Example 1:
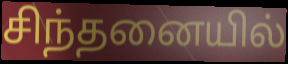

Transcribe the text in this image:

சிந்தனையில்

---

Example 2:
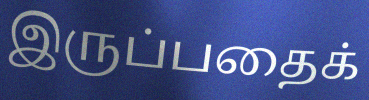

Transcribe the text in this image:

இருப்பதைக்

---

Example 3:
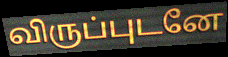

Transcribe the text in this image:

விருப்புடனே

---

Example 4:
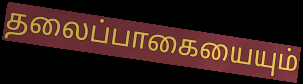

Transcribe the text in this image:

தலைப்பாகையையும்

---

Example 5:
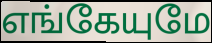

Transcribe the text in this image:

எங்கேயுமே